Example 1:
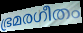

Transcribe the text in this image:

ഭ്രമരഗീതം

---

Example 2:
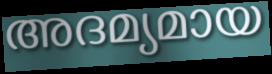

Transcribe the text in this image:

അദമ്യമായ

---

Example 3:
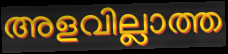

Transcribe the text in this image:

അളവില്ലാത്ത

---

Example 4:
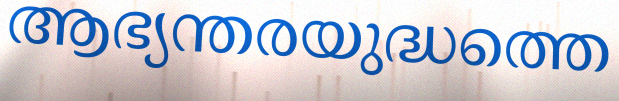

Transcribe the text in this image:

ആഭ്യന്തരയുദ്ധത്തെ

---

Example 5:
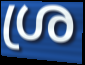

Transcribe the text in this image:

ശ്ര